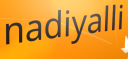
nadiyalli